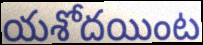
యశోదయింట